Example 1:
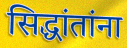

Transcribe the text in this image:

सिद्धांतांना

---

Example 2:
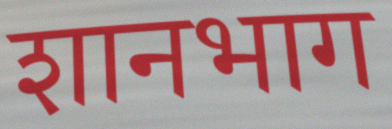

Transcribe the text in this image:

शानभाग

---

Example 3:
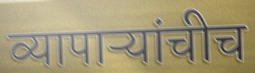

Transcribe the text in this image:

व्यापाऱ्यांचीच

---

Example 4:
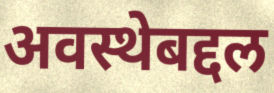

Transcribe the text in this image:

अवस्थेबद्दल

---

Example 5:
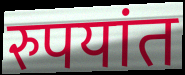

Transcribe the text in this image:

रुपयांत